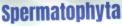
Spermatophyta